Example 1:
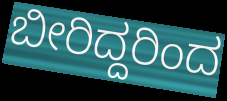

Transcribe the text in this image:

ಬೀರಿದ್ದರಿಂದ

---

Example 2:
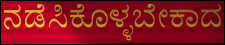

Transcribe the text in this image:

ನಡೆಸಿಕೊಳ್ಳಬೇಕಾದ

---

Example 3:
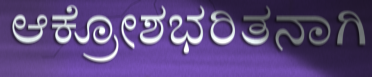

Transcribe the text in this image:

ಆಕ್ರೋಶಭರಿತನಾಗಿ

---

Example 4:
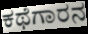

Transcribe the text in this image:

ಕಥೆಗಾರನ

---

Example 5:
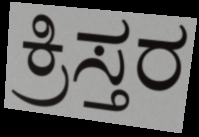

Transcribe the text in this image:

ಕ್ರಿಸ್ತರ